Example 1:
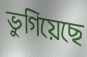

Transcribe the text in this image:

ভুগিয়েছে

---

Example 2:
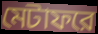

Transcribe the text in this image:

মেটাফরে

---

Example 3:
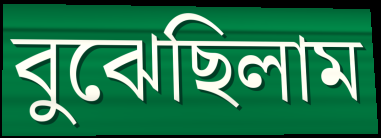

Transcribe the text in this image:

বুঝেছিলাম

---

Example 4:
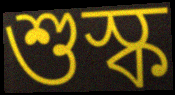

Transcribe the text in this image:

শুস্ক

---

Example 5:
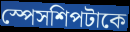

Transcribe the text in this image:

স্পেসশিপটাকে